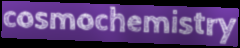
cosmochemistry